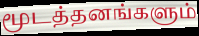
மூடத்தனங்களும்